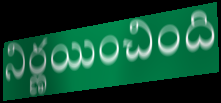
నిర్ణయించింది